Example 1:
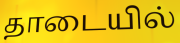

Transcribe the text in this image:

தாடையில்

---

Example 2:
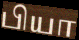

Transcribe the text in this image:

பியா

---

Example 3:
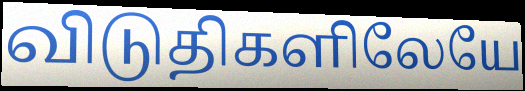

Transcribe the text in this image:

விடுதிகளிலேயே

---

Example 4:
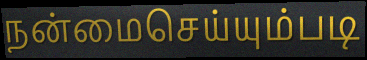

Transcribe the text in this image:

நன்மைசெய்யும்படி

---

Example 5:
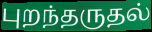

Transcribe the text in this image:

புறந்தருதல்